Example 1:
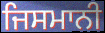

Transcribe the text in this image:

ਜਿਸਮਾਨੀ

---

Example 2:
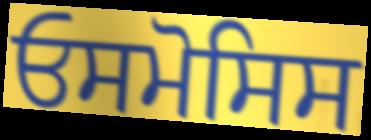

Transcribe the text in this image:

ਓਸਮੋਸਿਸ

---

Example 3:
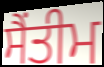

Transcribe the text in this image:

ਸੈਂਤੀਮ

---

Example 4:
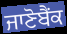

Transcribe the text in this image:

ਜਾਣੋਬੈਂਕ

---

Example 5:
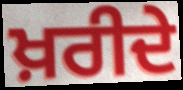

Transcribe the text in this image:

ਖ਼ਰੀਦੇ